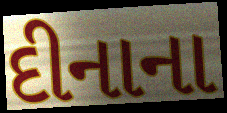
દીનાના